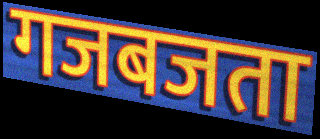
गजबजता